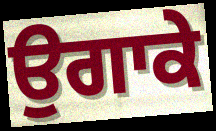
ਉਗਾਕੇ